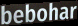
bebohar